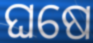
ଘଷେ